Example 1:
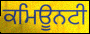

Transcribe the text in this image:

ਕਮਿਊਨਟੀ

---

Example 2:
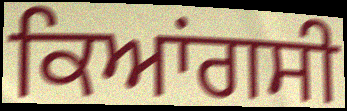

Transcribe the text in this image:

ਕਿਆਂਗਸੀ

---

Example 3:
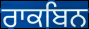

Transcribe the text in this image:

ਰਾਕਬਿਨ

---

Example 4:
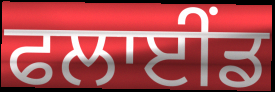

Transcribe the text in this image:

ਫਲਾਈਂਡ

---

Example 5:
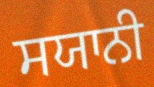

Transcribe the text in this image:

ਸਯਾਨੀ